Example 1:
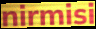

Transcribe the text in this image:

nirmisi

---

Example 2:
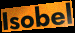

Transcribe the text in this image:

Isobel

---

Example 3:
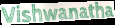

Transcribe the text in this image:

Vishwanatha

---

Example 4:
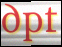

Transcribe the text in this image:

dpt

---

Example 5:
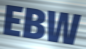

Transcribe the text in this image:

EBW